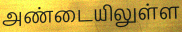
அண்டையிலுள்ள